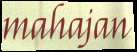
mahajan